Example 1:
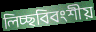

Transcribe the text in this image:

লিচ্ছবিবংশীয়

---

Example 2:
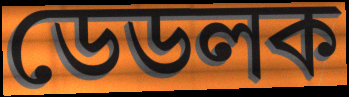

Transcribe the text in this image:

ডেডলক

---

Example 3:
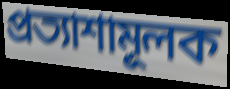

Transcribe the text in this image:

প্রত্যাশামূলক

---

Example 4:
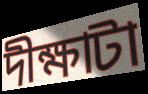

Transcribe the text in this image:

দীক্ষাটা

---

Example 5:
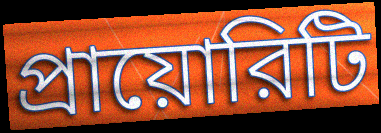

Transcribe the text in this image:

প্রায়োরিটি